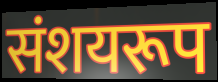
संशयरूप